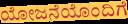
ಯೋಜನೆಯೊಂದಿಗೆ